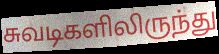
சுவடிகளிலிருந்து